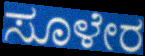
ಸೂಳೇರ